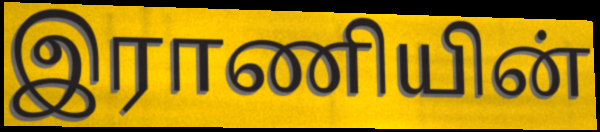
இராணியின்